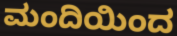
ಮಂದಿಯಿಂದ